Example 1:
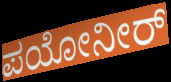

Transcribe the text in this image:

ಪಯೋನೀರ್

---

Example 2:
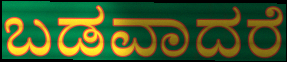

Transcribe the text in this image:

ಬಡವಾದರೆ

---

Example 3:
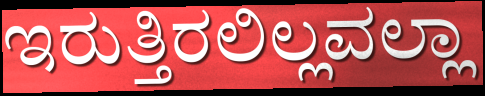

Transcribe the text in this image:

ಇರುತ್ತಿರಲಿಲ್ಲವಲ್ಲಾ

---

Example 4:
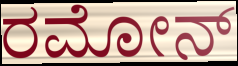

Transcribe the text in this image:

ರಮೋನ್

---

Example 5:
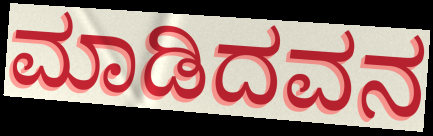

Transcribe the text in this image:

ಮಾಡಿದವನ